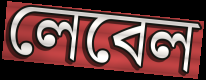
লেবেল